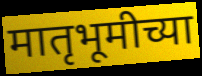
मातृभूमीच्या